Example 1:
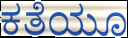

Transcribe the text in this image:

ಕತೆಯೂ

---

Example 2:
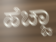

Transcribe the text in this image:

ಹೆಚ್ಚಾ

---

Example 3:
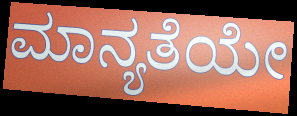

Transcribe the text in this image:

ಮಾನ್ಯತೆಯೇ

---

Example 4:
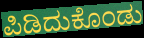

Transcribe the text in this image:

ಪಿಡಿದುಕೊಂಡು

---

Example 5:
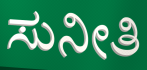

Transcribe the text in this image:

ಸುನೀತಿ